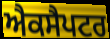
ਐਕਸੈਪਟਰ